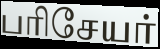
பரிசேயர்